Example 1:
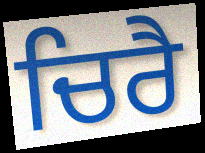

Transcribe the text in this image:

ਚਿਰੈ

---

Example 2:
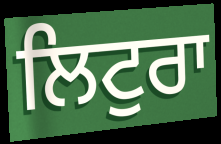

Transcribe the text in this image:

ਲਿਟੁਰਾ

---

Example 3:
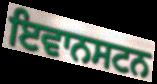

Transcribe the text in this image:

ਇਵਾਨਸਟਨ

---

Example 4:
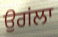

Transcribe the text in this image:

ਉਗਂਲਾ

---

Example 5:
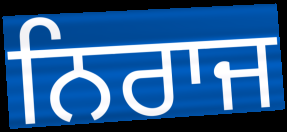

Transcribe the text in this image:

ਨਿਰਾਜ